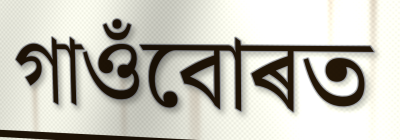
গাওঁবোৰত